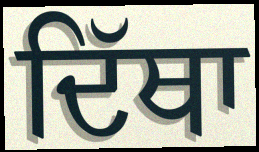
ਦਿੱਥਾ